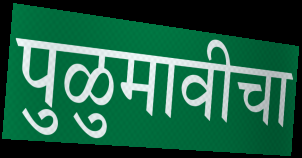
पुळुमावीचा